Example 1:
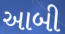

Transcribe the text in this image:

આબી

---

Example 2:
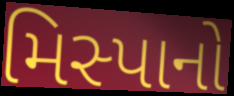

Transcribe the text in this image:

મિસ્પાનો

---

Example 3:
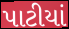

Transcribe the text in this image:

પાટીયાં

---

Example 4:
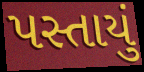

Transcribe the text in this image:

પસ્તાયું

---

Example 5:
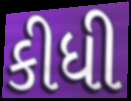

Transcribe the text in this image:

કીધી